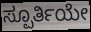
ಸ್ಪೂರ್ತಿಯೇ